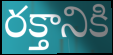
రక్తానికి